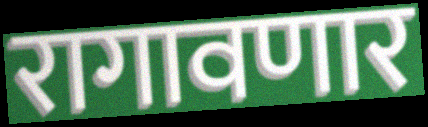
रागावणार